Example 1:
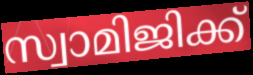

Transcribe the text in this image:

സ്വാമിജിക്ക്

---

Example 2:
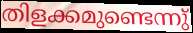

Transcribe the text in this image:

തിളക്കമുണ്ടെന്നു്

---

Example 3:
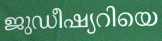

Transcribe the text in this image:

ജുഡീഷ്യറിയെ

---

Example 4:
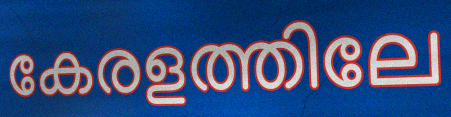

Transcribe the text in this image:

കേരളത്തിലേ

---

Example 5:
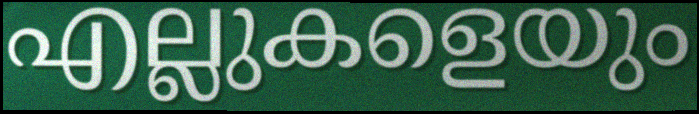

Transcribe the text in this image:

എല്ലുകളെയും